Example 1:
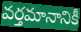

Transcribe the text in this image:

వర్తమానానికీ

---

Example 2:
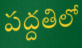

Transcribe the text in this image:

పద్దతిలో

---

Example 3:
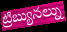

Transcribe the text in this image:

ట్రిబ్యునల్ను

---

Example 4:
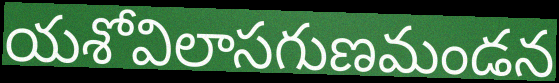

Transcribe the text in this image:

యశోవిలాసగుణమండన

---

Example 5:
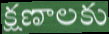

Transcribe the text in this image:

క్షణాలకు